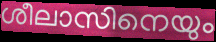
ശീലാസിനെയും